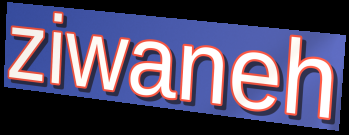
ziwaneh